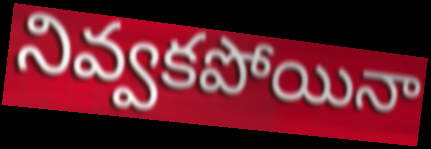
నివ్వకపోయినా